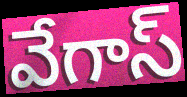
వేగాస్